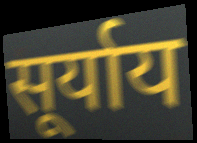
सूर्याय